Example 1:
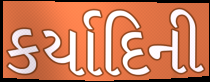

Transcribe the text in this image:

કર્યાદિની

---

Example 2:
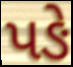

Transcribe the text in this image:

પઙે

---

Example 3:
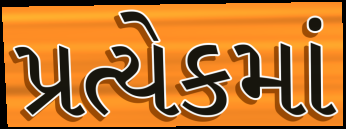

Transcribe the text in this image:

પ્રત્યેકમાં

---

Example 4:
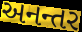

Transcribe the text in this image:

અનન્તર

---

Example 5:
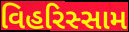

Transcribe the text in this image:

વિહરિસ્સામ